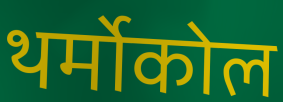
थर्मोकोल